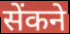
सेंकने